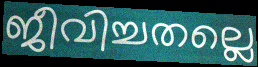
ജീവിച്ചതല്ലെ